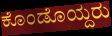
ಕೊಂಡೊಯ್ದರು